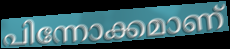
പിന്നോക്കമാണ്